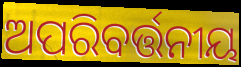
ଅପରିବର୍ତ୍ତନୀୟ